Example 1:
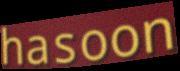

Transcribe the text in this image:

hasoon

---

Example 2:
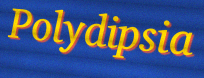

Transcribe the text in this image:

Polydipsia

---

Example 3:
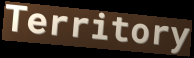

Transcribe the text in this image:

Territory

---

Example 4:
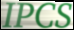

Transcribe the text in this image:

IPCS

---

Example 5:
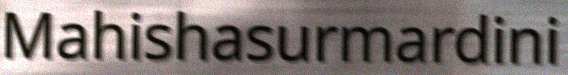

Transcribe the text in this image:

Mahishasurmardini